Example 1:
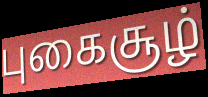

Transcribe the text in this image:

புகைசூழ்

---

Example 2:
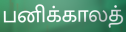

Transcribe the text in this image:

பனிக்காலத்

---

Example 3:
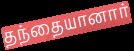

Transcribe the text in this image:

தந்தையானார்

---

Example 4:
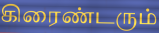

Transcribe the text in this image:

கிரைண்டரும்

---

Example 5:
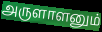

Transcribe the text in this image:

அருளாளனும்